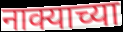
नाक्याच्या